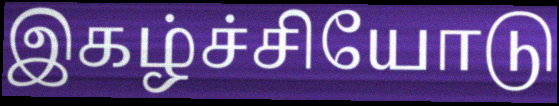
இகழ்ச்சியோடு